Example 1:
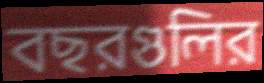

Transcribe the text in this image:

বছরগুলির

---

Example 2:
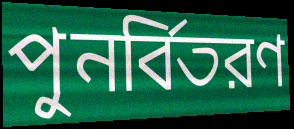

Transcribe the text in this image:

পুনর্বিতরণ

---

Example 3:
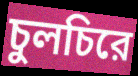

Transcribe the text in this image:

চুলচিরে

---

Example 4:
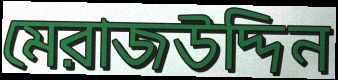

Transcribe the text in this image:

মেরাজউদ্দিন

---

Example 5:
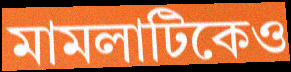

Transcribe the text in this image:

মামলাটিকেও